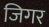
जिगर